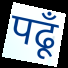
पढूँ